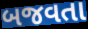
બજવતા